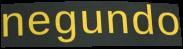
negundo